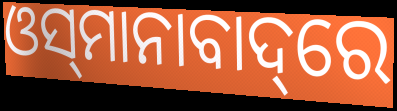
ଓସ୍‌ମାନାବାଦ୍‌ରେ